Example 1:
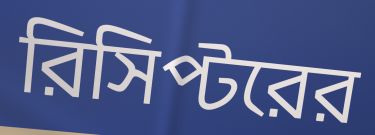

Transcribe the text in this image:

রিসিপ্টরের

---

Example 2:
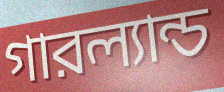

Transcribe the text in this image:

গারল্যান্ড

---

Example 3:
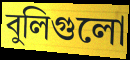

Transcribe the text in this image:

বুলিগুলো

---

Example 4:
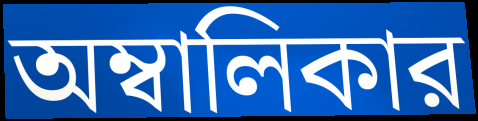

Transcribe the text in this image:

অম্বালিকার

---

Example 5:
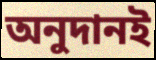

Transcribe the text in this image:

অনুদানই